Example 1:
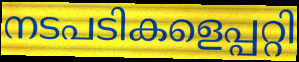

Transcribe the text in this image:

നടപടികളെപ്പറ്റി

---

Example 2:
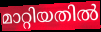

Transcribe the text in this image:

മാറ്റിയതിൽ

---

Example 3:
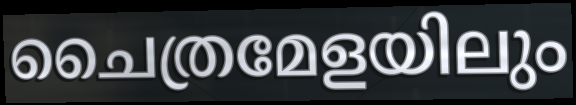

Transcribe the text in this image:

ചൈത്രമേളയിലും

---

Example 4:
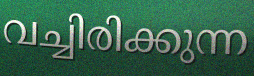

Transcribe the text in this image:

വച്ചിരിക്കുന്ന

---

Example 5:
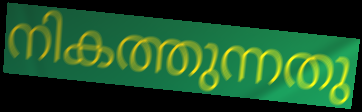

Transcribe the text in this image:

നികത്തുന്നതു